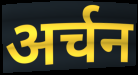
अर्चन